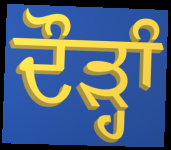
ਦੌੜ੍ਹਾੰ